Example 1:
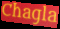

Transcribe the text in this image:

Chagla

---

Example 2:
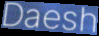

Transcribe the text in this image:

Daesh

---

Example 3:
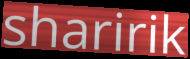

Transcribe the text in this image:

sharirik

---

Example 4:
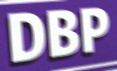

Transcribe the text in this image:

DBP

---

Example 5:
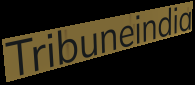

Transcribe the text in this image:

Tribuneindia